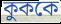
কুককে